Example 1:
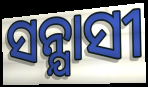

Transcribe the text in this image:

ସନ୍ଯାସୀ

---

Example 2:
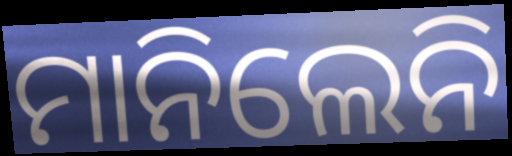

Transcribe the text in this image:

ମାନିଲେନି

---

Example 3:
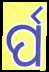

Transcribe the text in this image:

ର୍ପ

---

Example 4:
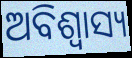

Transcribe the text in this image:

ଅବିଶ୍ୱାସ୍ୟ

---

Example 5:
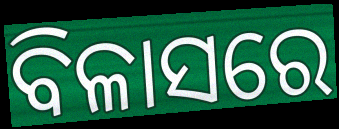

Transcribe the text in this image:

ବିଳାସରେ